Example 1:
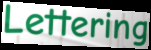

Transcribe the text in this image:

Lettering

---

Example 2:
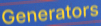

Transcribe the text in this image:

Generators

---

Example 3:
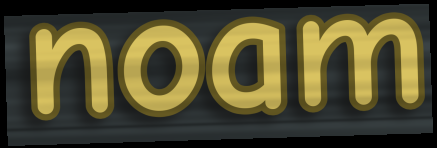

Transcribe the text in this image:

noam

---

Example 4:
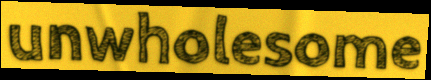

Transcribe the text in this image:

unwholesome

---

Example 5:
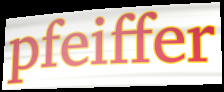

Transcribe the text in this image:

pfeiffer